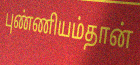
புண்ணியம்தான்